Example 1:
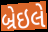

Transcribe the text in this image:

બ્રેઇલે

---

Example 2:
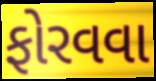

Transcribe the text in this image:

ફોરવવા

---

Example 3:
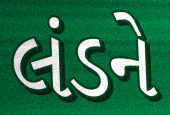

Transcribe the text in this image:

લંડને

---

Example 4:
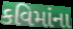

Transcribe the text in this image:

કવિમાંના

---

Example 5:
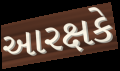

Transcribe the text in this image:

આરક્ષકે